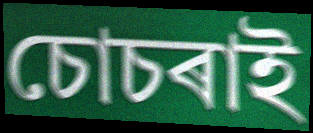
চোচৰাই